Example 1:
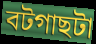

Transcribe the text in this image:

বটগাছটা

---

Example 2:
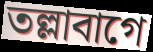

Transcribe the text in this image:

তল্লাবাগে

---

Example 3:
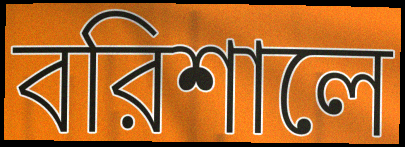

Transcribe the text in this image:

বরিশালে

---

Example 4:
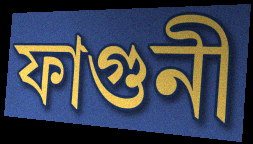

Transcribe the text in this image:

ফাগুনী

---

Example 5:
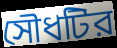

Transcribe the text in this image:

সৌধটির